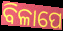
ବିଳାପେ